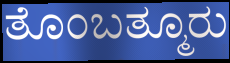
ತೊಂಬತ್ಮೂರು